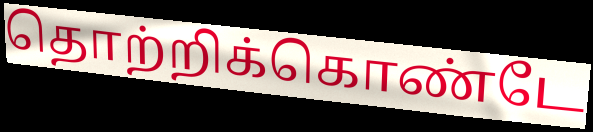
தொற்றிக்கொண்டே